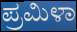
ಪ್ರಮಿಳಾ